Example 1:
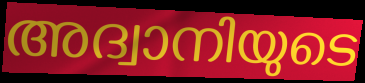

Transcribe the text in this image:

അദ്വാനിയുടെ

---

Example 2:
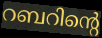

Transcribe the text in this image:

റബറിന്റെ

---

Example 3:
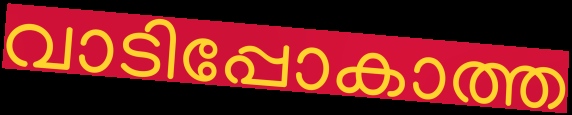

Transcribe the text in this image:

വാടിപ്പോകാത്ത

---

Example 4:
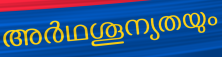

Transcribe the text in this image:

അർഥശൂന്യതയും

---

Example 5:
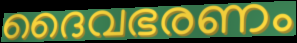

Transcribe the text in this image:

ദൈവഭരണം